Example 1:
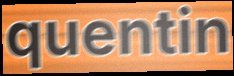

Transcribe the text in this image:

quentin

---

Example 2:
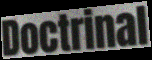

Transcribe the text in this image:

Doctrinal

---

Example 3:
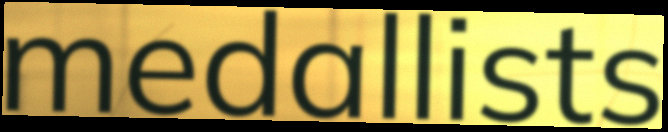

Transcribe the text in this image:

medallists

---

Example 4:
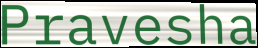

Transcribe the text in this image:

Pravesha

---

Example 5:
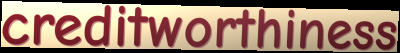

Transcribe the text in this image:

creditworthiness